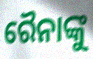
ରୈନାଙ୍କୁ